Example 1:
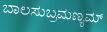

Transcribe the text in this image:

ಬಾಲಸುಬ್ರಮಣ್ಯಮ್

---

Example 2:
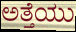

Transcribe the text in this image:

ಅತ್ತೆಯು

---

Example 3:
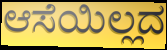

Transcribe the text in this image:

ಆಸೆಯಿಲ್ಲದ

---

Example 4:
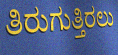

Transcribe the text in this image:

ತಿರುಗುತ್ತಿರಲು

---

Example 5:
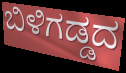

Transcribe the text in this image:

ಬಿಳಿಗಡ್ಡದ